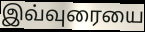
இவ்வுரையை